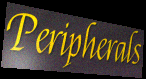
Peripherals